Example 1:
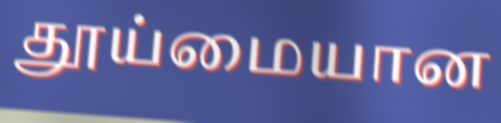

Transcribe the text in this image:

தூய்மையான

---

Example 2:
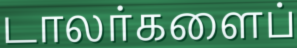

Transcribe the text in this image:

டாலர்களைப்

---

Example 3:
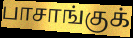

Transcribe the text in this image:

பாசாங்குக்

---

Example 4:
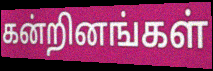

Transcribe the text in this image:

கன்றினங்கள்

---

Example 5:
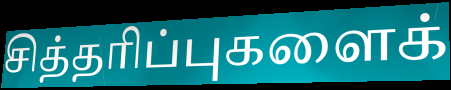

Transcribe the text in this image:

சித்தரிப்புகளைக்